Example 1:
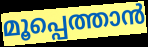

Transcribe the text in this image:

മൂപ്പെത്താൻ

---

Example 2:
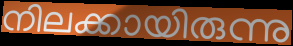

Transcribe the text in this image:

നിലക്കായിരുന്നു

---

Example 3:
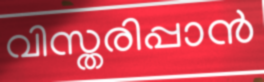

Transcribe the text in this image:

വിസ്തരിപ്പാൻ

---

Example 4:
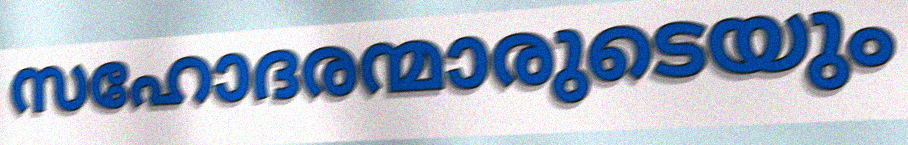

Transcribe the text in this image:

സഹോദരന്മാരുടെയും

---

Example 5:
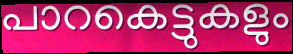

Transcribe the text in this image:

പാറകെട്ടുകളും